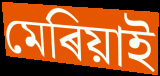
মেৰিয়াই